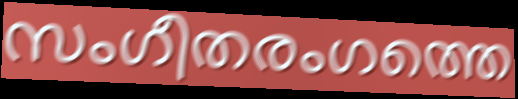
സംഗീതരംഗത്തെ